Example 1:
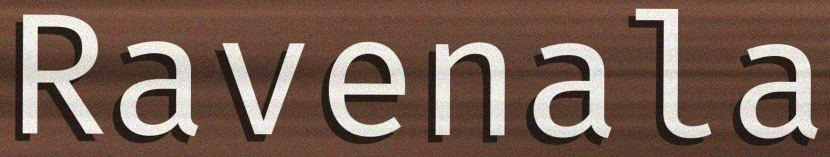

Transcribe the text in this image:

Ravenala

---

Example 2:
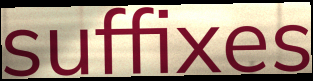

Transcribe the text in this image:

suffixes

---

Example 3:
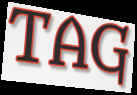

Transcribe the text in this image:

TAG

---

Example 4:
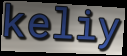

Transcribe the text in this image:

keliy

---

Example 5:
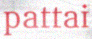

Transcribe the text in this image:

pattai